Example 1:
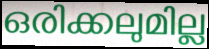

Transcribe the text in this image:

ഒരിക്കലുമില്ല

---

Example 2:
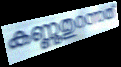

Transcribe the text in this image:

കണ്ണുതുറന്നത്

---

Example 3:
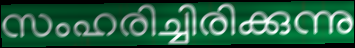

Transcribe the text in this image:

സംഹരിച്ചിരിക്കുന്നു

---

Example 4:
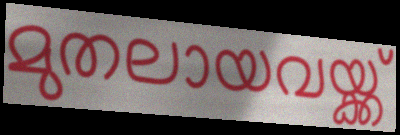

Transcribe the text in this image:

മുതലായവയ്ക്ക്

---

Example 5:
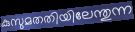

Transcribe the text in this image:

കുസുമതതിയിലേന്തുന്ന